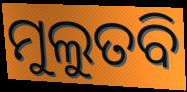
ମୁଲୁତବି